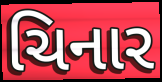
ચિનાર